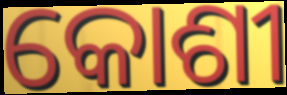
କୋଶୀ